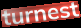
turnest